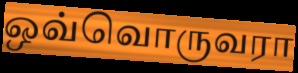
ஒவ்வொருவரா